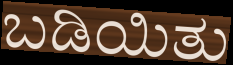
ಬಡಿಯಿತು